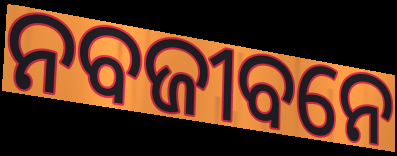
ନବଜୀବନେ